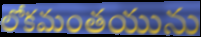
లోకమంతయును